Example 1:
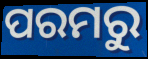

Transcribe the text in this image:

ପରମରୁ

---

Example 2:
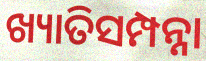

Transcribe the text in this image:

ଖ୍ୟାତିସମ୍ପନ୍ନା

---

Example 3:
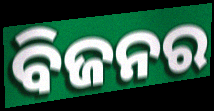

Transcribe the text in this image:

ବିଜନର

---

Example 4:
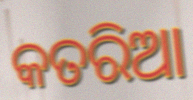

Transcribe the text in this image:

କତରିଆ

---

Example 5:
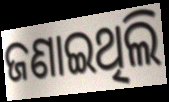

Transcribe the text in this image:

ଜଣାଇଥିଲି